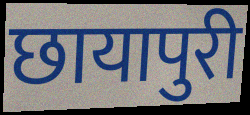
छायापुरी